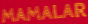
MAMALAR